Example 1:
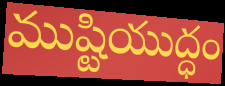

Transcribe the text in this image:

ముష్టియుద్ధం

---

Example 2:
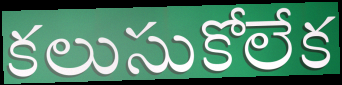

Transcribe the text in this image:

కలుసుకోలేక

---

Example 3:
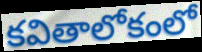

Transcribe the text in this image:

కవితాలోకంలో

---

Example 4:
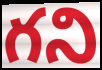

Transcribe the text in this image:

గని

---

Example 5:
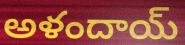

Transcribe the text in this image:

అళందాయ్